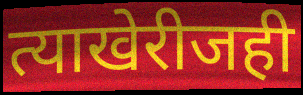
त्याखेरीजही